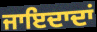
ਜਾਇਦਾਦਾਂ